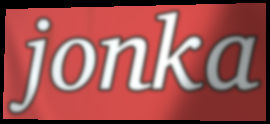
jonka